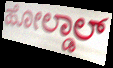
ಹೋಲ್ಡಾಲ್